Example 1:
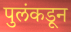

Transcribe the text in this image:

पुलंकडून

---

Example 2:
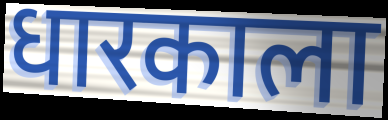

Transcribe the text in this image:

धारकाला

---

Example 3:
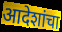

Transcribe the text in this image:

आदेशांचा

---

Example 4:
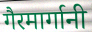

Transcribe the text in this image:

गैरमार्गानी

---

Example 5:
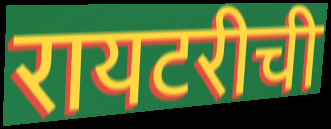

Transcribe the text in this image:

रायटरीची